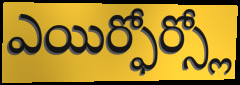
ఎయిర్ఫోర్స్లో